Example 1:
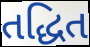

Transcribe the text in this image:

તદ્ધિત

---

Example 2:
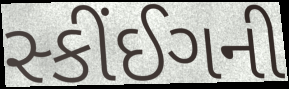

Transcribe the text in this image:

સ્કીંઈગની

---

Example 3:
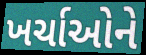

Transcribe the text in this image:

ખર્ચાઓને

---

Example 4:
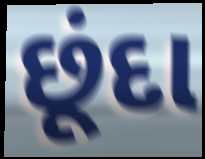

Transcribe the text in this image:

છૂંદા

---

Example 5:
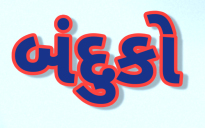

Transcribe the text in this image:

બંદુકો